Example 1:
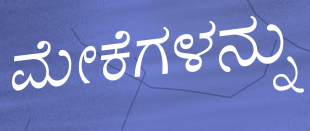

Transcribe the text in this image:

ಮೇಕೆಗಳನ್ನು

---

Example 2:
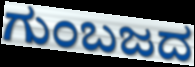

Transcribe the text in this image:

ಗುಂಬಜದ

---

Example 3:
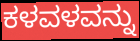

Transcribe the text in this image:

ಕಳವಳವನ್ನು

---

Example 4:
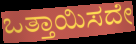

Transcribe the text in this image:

ಒತ್ತಾಯಿಸದೇ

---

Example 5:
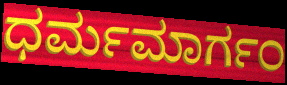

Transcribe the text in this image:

ಧರ್ಮಮಾರ್ಗಂ